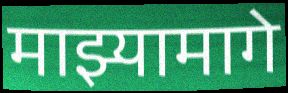
माझ्यामागे